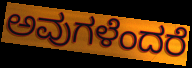
ಅವುಗಳೆಂದರೆ